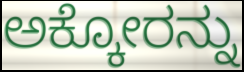
ಅಕ್ಕೋರನ್ನು